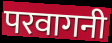
परवागनी